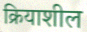
क्रियाशील